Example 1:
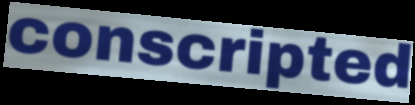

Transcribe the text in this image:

conscripted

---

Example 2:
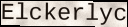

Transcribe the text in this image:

Elckerlyc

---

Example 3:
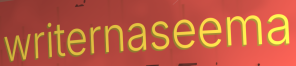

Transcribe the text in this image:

writernaseema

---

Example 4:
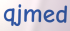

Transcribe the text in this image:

qjmed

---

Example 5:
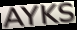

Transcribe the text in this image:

AYKS